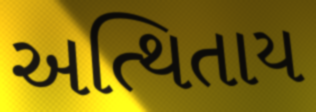
અત્થિતાય